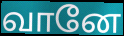
வானே